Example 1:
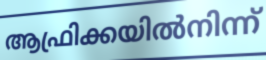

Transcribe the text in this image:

ആഫ്രിക്കയിൽനിന്ന്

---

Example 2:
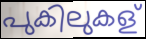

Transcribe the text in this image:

പുകിലുകള്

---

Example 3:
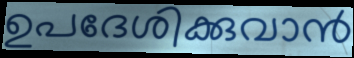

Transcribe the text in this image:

ഉപദേശിക്കുവാൻ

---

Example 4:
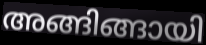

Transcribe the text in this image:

അങ്ങിങ്ങായി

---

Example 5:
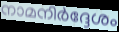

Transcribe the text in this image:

നാമനിർദ്ദേശം